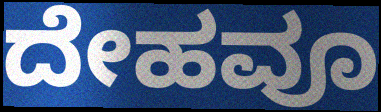
ದೇಹವೂ